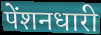
पेंशनधारी